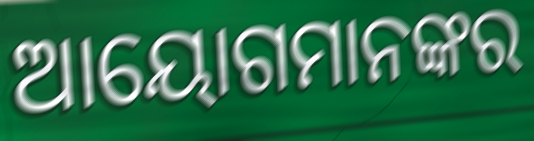
ଆୟୋଗମାନଙ୍କର